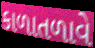
કાળાતળાવે